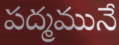
పద్మమునే